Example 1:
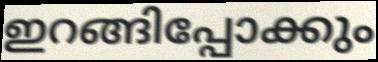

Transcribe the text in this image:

ഇറങ്ങിപ്പോക്കും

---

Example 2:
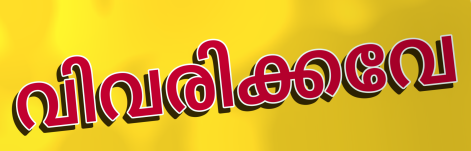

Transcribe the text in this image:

വിവരിക്കവേ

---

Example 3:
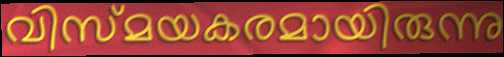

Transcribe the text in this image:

വിസ്മയകരമായിരുന്നു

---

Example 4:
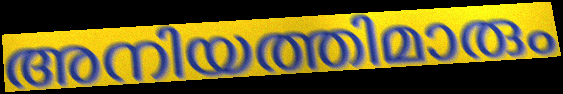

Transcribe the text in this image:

അനിയത്തിമാരും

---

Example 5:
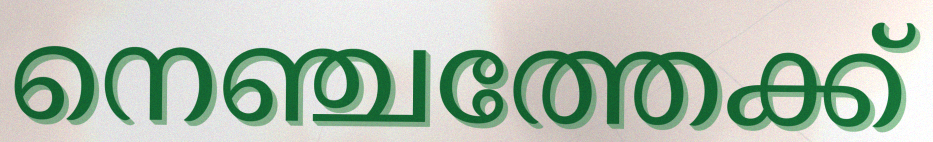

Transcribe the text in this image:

നെഞ്ചത്തേക്ക്